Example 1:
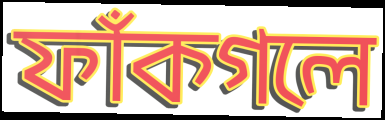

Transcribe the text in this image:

ফাঁকগলে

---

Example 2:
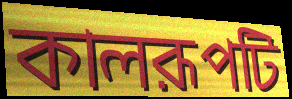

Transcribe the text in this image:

কালরূপটি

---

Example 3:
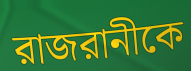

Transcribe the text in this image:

রাজরানীকে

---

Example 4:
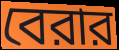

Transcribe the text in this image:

বেরার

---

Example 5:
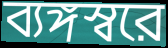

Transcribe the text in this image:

ব্যঙ্গস্বরে